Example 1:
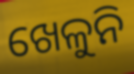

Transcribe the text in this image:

ଖେଳୁନି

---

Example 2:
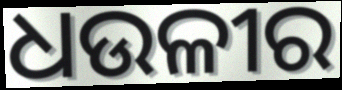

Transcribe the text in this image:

ଧଉଳୀର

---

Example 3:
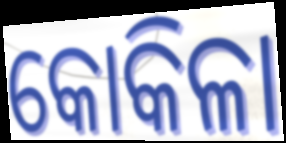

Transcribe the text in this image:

କୋକିଳା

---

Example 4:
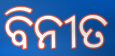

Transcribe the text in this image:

ବିନୀତ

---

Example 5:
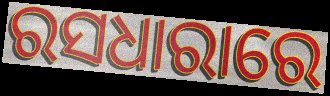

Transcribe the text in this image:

ରସଧାରାରେ